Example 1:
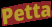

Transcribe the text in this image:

Petta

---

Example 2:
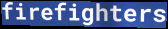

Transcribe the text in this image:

firefighters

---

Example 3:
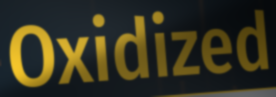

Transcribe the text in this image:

Oxidized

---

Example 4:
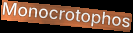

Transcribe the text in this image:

Monocrotophos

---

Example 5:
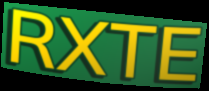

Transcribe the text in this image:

RXTE